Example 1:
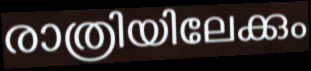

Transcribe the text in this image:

രാത്രിയിലേക്കും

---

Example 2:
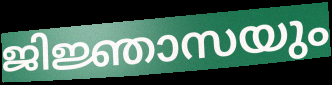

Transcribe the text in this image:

ജിജ്ഞാസയും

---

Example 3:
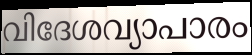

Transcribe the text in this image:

വിദേശവ്യാപാരം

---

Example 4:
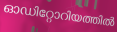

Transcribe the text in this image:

ഓഡിറ്റോറിയത്തിൽ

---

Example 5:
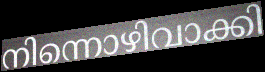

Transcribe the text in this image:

നിന്നൊഴിവാക്കി